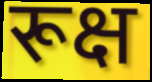
रूक्ष